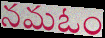
నమఓం